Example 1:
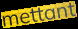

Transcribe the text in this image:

mettant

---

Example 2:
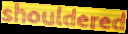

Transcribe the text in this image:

shouldered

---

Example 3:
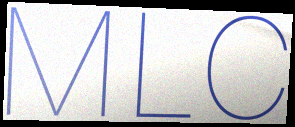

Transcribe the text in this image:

MLC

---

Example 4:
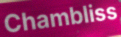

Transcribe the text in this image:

Chambliss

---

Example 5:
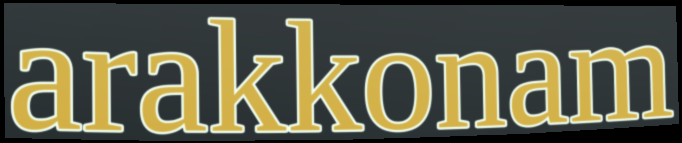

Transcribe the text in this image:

arakkonam